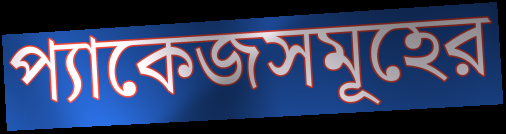
প্যাকেজসমূহের